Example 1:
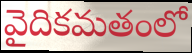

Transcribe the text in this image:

వైదికమతంలో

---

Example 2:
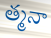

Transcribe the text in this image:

త్మనా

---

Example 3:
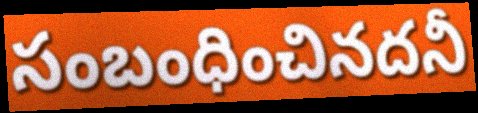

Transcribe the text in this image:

సంబంధించినదనీ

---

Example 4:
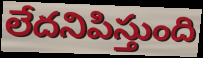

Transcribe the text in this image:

లేదనిపిస్తుంది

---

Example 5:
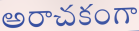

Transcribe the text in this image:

అరాచకంగా